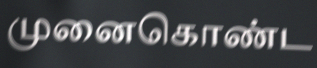
முனைகொண்ட